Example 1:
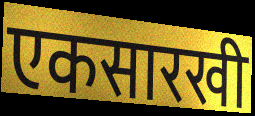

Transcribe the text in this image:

एकसारखी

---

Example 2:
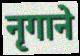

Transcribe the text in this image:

नृगाने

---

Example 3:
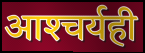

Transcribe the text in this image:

आश्‍चर्यही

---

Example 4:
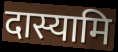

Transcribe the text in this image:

दास्यामि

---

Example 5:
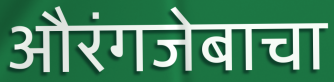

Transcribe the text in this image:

औरंगजेबाचा